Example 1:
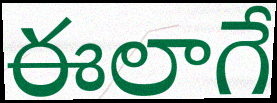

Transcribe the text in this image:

ఈలాగే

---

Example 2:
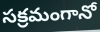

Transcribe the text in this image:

సక్రమంగానో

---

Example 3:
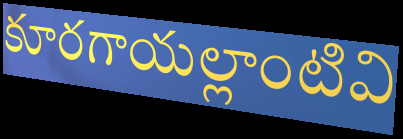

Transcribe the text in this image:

కూరగాయల్లాంటివి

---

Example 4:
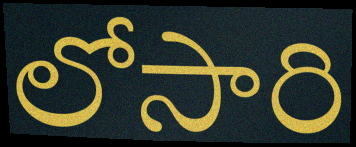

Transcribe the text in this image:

లోసారి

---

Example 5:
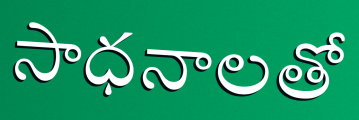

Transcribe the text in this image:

సాధనాలతో